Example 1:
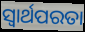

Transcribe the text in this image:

ସ୍ବାର୍ଥପରତା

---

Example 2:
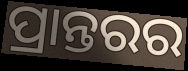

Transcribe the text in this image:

ପ୍ରାନ୍ତରର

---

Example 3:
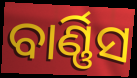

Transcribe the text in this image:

ବାର୍ଣ୍ଣିସ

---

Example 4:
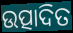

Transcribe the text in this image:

ଉତ୍ପାଦିତ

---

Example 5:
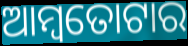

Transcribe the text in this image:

ଆମ୍ବତୋଟାର